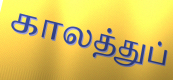
காலத்துப்